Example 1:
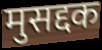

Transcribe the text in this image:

मुसद्दक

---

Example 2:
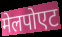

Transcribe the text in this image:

मेलपोएट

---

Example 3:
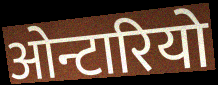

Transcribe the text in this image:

ओन्टारियो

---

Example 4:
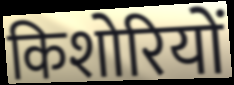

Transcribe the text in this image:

किशोरियों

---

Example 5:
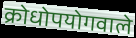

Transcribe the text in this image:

क्रोधोपयोगवाले